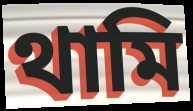
থামি